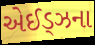
એઈડ્ઝના